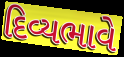
દિવ્યભાવે